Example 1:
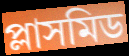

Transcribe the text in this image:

প্লাসমিড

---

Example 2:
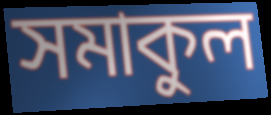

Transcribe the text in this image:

সমাকুল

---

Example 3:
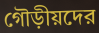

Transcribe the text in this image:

গৌড়ীয়দের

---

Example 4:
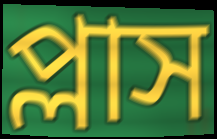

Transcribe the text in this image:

প্লাস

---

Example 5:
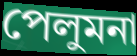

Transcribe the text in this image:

পেলুমনা